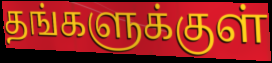
தங்களுக்குள்